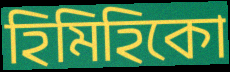
হিমিহিকো